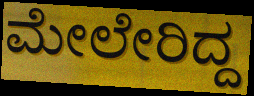
ಮೇಲೇರಿದ್ದ